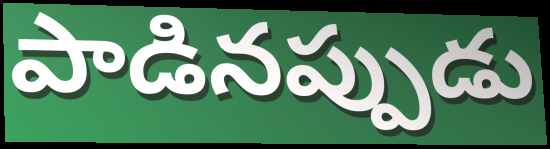
పాడినప్పుడు